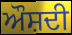
ਔਸ਼ਦੀ